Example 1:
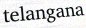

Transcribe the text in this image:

telangana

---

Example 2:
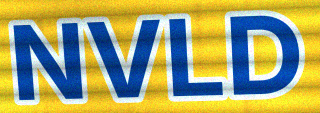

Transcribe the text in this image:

NVLD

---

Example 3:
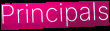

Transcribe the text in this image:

Principals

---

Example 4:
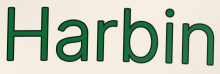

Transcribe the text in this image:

Harbin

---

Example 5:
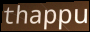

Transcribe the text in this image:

thappu